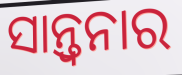
ସାନ୍ତ୍ୱନାର